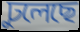
ঢুলেছে